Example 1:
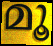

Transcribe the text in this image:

മൂ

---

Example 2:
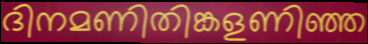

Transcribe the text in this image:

ദിനമണിതിങ്കളണിഞ്ഞ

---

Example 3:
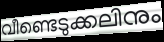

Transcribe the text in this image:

വീണ്ടെടുക്കലിനും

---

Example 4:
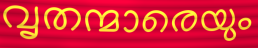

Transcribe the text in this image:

വൃതന്മാരെയും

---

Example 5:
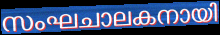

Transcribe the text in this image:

സംഘചാലകനായി